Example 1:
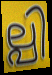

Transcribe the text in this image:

ല്പി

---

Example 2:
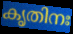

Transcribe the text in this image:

കൃതിനഃ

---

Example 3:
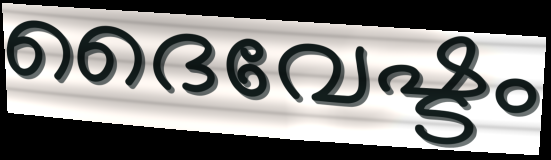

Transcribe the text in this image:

ദൈവേഷ്ടം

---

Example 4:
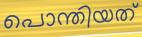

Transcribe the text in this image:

പൊന്തിയത്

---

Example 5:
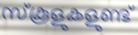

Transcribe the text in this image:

സ്കൂളുകളുണ്ട്